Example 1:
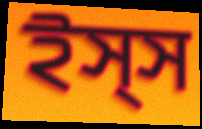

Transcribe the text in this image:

ইস্‌স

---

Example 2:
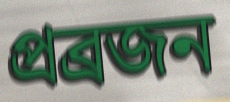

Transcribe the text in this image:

প্রব্রজন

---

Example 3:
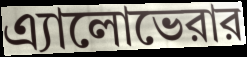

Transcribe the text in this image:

এ্যালোভেরার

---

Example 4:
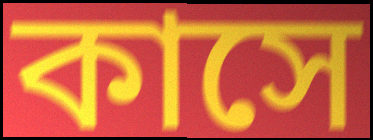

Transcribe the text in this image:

কাসে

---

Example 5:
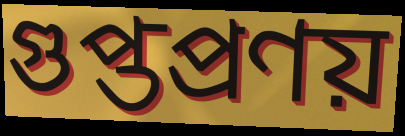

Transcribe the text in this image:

গুপ্তপ্রণয়